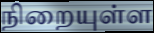
நிறையுள்ள